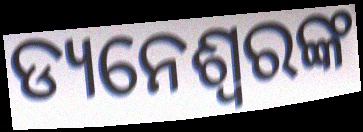
ଡ୍ୟନେଶ୍ୱରଙ୍କ